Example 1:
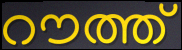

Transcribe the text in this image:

റൗത്ത്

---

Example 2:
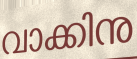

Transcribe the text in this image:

വാക്കിനു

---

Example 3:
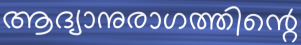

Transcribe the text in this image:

ആദ്യാനുരാഗത്തിന്റെ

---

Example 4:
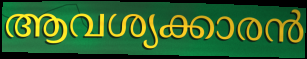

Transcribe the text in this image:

ആവശ്യക്കാരൻ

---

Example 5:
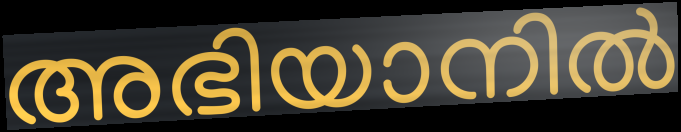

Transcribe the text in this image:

അഭിയാനിൽ